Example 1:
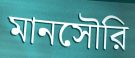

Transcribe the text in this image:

মানসৌরি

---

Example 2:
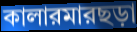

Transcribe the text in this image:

কালারমারছড়া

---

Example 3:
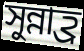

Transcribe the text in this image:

সুন্নাহ্র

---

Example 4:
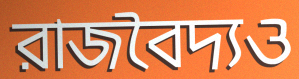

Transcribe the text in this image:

রাজবৈদ্যও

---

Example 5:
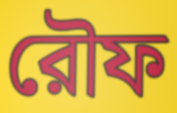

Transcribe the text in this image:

রৌফ